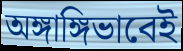
অঙ্গাঙ্গিভাবেই